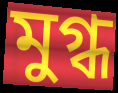
মুগ্ধ